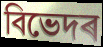
বিভেদৰ